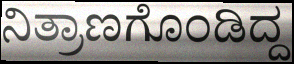
ನಿತ್ರಾಣಗೊಂಡಿದ್ದ